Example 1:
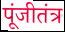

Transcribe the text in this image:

पूंजीतंत्र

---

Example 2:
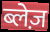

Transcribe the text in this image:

ब्लेज़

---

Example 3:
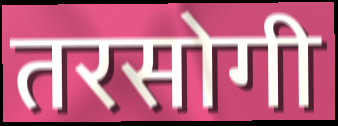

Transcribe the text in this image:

तरसोगी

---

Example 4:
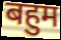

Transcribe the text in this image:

बहुम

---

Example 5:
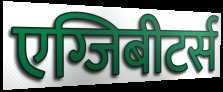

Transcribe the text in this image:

एग्जिबीटर्स